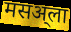
मसअ्ला